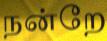
நன்றே